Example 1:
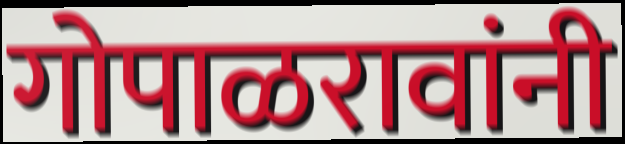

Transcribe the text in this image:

गोपाळरावांनी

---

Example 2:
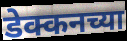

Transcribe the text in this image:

डेक्कनच्या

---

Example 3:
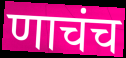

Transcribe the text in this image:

णाचंच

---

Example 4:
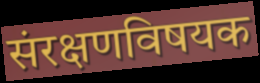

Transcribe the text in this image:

संरक्षणविषयक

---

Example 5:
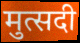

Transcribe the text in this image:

मुत्सदी